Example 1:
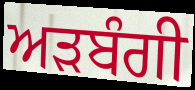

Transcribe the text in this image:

ਅੜਬੰਗੀ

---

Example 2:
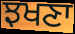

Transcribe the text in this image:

ਝਖਣਾ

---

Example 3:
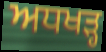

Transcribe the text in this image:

ਅਧਖੜ੍ਹ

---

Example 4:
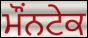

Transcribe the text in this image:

ਮੌਂਨਟੇਕ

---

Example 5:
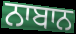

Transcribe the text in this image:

ਨਾਬਾਨ